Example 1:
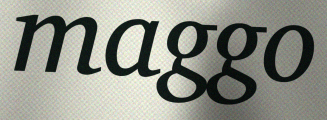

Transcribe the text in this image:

maggo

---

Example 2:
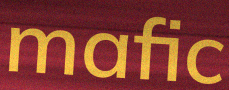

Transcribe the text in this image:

mafic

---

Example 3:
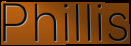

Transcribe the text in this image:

Phillis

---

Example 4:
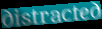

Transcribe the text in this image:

distracted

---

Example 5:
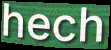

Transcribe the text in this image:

hech